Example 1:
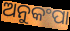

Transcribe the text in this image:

ଅନୁକଂପା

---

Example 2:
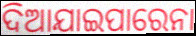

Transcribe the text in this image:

ଦିଆଯାଇପାରେନା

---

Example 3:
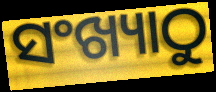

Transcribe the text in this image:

ସଂଖ୍ୟାଠୁ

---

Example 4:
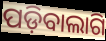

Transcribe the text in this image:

ପଡ଼ିବାଲାଗି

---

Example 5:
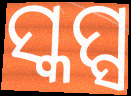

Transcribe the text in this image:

ସ୍କପ୍ସ